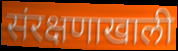
संरक्षणाखाली